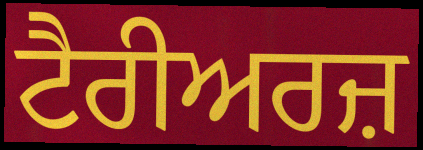
ਟੈਰੀਅਰਜ਼